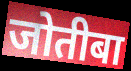
जोतीबा